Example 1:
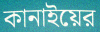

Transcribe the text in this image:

কানাইয়ের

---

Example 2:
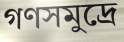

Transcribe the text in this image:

গণসমুদ্রে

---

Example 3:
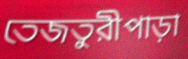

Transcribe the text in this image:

তেজতুরীপাড়া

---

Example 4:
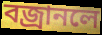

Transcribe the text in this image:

বজ্রানলে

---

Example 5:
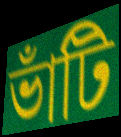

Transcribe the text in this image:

ভাঁটি